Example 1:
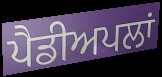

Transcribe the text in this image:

ਪੈਡੀਅਪਲਾਂ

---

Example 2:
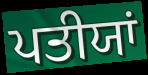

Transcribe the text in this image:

ਪਤੀਯਾਂ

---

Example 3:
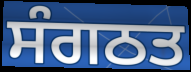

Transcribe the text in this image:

ਸੰਗਠਤ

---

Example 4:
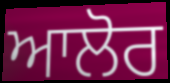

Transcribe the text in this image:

ਆਲੋਰ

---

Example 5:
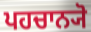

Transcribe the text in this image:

ਪਹਚਾਨ੍ਯੋ